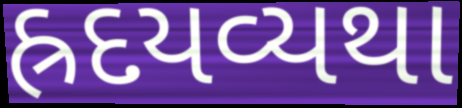
હ્રદયવ્યથા